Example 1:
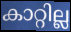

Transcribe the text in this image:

കാറ്റില്ല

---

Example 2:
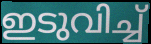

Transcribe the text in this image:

ഇടുവിച്ച്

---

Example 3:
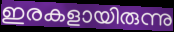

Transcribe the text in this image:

ഇരകളായിരുന്നു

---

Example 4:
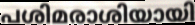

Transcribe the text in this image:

പശിമരാശിയായി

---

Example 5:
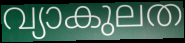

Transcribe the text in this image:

വ്യാകുലത